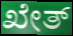
ಖೇತ್